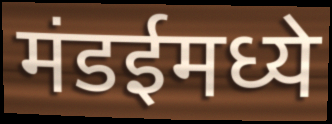
मंडईमध्ये